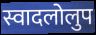
स्वादलोलुप